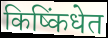
किष्किंधेत